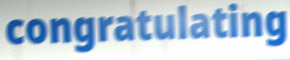
congratulating